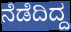
ನೆಡೆದಿದ್ದ